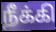
நீக்கி